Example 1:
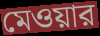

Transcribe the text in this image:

মেওয়ার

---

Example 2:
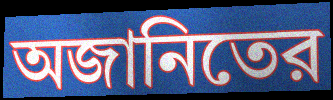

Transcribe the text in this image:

অজানিতের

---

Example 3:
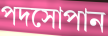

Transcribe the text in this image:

পদসোপান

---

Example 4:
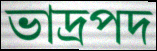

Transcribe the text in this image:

ভাদ্রপদ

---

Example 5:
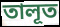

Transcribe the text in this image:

তালূত